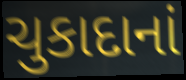
ચુકાદાનાં